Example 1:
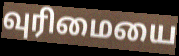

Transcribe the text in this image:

வுரிமையை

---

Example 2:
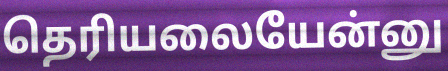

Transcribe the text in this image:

தெரியலையேன்னு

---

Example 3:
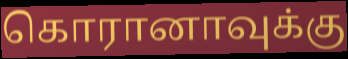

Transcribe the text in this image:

கொரானாவுக்கு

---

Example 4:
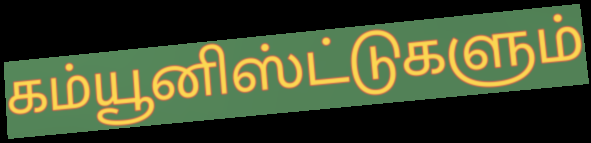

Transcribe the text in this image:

கம்யூனிஸ்ட்டுகளும்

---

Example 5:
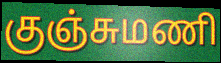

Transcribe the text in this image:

குஞ்சுமணி